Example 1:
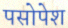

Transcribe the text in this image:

पसोपेश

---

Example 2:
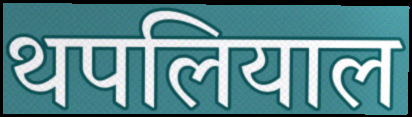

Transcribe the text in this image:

थपलियाल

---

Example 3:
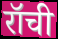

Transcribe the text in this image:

रॉची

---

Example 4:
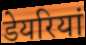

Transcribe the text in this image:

डेयरियां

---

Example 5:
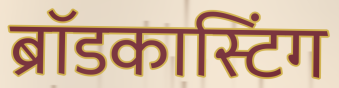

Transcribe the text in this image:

ब्रॉडकास्टिंग